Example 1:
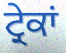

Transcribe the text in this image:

ਟ੍ਰੇਕਾਂ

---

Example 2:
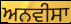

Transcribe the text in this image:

ਅਨਵੀਸਾ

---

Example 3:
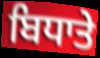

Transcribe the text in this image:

ਬਿਧਾਤੇ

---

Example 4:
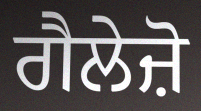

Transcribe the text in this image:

ਗੈਲੇਜ਼ੋ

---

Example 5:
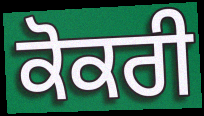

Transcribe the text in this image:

ਕੋਕਰੀ